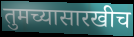
तुमच्यासारखीच